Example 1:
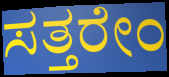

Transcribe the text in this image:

ಸತ್ತರೇಂ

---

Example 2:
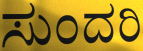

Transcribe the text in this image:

ಸುಂದರಿ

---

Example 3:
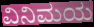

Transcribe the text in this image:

ವಿನಿಮಯ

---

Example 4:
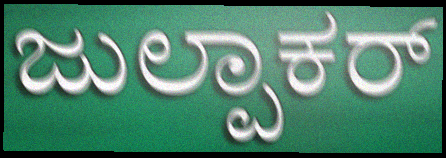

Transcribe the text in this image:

ಜುಲ್ಪಾಕರ್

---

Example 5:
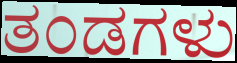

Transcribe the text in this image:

ತಂಡಗಳು